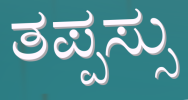
ತಪ್ಪಸ್ಸು